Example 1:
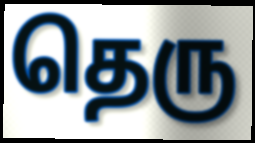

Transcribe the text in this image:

தெரு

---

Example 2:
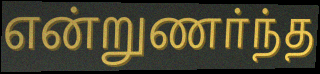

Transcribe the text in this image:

என்றுணர்ந்த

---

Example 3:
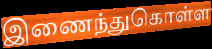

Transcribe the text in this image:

இணைந்துகொள்ள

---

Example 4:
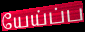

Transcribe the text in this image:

யேய்ப்ப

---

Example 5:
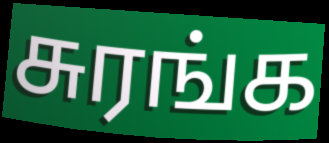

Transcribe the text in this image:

சுரங்க